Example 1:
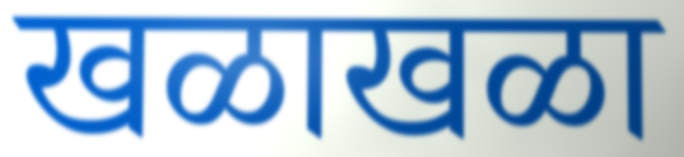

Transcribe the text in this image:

खळाखळा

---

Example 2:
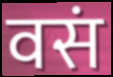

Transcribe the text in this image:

वसं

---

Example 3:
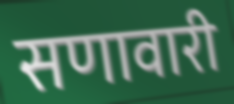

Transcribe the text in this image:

सणावारी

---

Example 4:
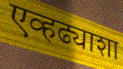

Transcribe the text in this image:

एव्हढ्याशा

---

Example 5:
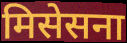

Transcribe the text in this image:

मिसेसना